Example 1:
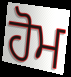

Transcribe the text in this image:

ਹੋਮ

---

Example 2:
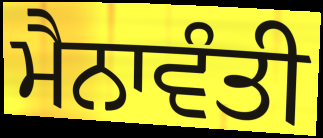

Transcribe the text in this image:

ਮੈਨਾਵੰਤੀ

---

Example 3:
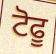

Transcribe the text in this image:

ਟੋਫੂ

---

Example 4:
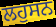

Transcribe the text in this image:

ਲਹੁਸਨ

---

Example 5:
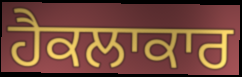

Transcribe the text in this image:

ਹੈਕਲਾਕਾਰ